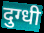
दुग्धी